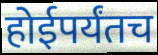
होईपर्यंतच